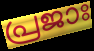
പ്രജാഃ